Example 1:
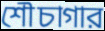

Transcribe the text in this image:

শৌচাগার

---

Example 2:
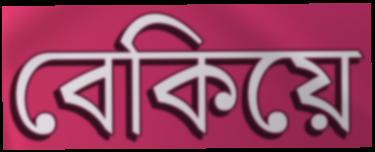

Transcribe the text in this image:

বেকিয়ে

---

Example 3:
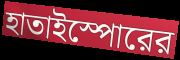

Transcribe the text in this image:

হাতাইস্পোরের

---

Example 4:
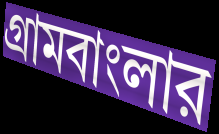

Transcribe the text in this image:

গ্রামবাংলার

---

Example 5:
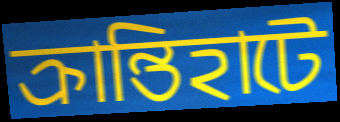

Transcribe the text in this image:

ক্রান্তিহাটে